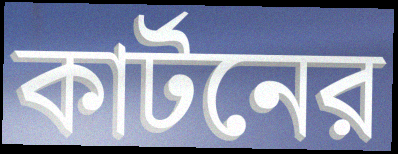
কার্টনের